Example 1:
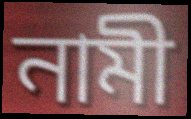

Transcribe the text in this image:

নামী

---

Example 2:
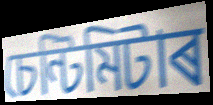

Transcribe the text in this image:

চেন্টিমিটাৰ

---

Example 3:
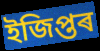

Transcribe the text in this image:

ইজিপ্তৰ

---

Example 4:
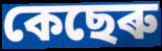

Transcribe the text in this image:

কেছেৰু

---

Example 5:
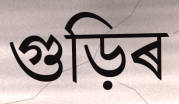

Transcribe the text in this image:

গুড়িৰ